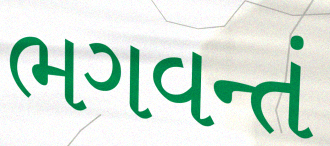
ભગવન્તં